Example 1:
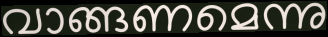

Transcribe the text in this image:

വാങ്ങണമെന്നു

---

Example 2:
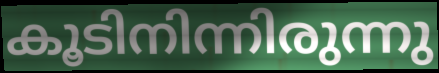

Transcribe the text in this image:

കൂടിനിന്നിരുന്നു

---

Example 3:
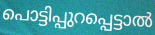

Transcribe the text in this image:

പൊട്ടിപ്പുറപ്പെട്ടാൽ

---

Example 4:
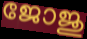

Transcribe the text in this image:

ജോജു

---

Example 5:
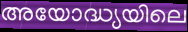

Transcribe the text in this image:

അയോദ്ധ്യയിലെ